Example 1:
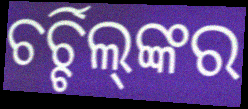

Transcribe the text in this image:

ଚର୍ଚ୍ଚିଲ୍‌ଙ୍କର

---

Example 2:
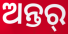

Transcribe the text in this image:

ଅନ୍ତର୍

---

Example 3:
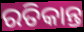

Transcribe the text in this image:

ରତିକାନ୍ତ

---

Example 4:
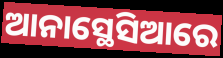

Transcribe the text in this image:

ଆନାସ୍ଥେସିଆରେ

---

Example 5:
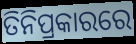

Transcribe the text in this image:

ତିନିପ୍ରକାରରେ